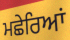
ਮਛੇਰਿਆਂ